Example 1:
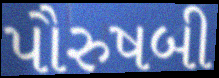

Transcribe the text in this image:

પૌરુષબી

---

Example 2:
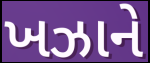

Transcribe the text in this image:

ખઝાને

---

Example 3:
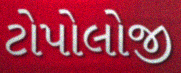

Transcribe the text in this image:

ટોપોલોજી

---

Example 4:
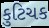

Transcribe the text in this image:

કુટિચક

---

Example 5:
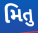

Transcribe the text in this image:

મિતુ